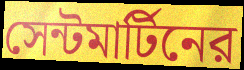
সেন্টমার্টিনের